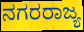
ನಗರರಾಜ್ಯ